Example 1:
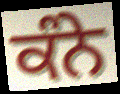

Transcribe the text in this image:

ਕੰਨੇ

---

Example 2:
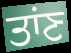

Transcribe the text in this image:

ਤਾਂਣ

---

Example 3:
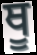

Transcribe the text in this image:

ਥੂ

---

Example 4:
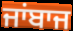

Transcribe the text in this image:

ਜਾਂਬਾਜ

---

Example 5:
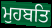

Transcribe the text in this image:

ਮੁਹਬਤਿ